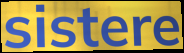
sistere